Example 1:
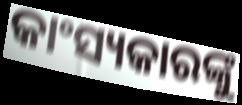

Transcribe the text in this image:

କାଂସ୍ୟକାରଙ୍କୁ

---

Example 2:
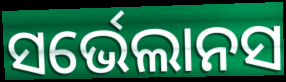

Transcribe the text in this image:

ସର୍ଭେଲାନସ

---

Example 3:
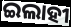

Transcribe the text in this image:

ଇଲାହୀ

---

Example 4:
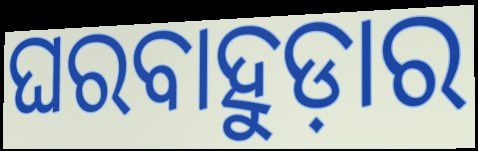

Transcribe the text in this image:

ଘରବାହୁଡ଼ାର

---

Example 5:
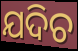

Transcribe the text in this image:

ଯଦିଚ